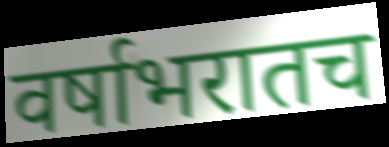
वर्षाभरातच